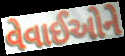
વેવાઈઓને